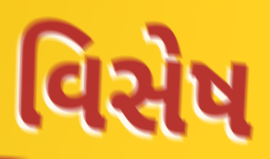
વિસેષ